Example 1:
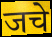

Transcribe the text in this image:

जचे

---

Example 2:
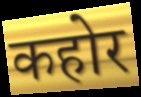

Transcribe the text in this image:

कहोर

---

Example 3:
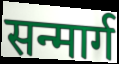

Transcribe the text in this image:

सन्मार्ग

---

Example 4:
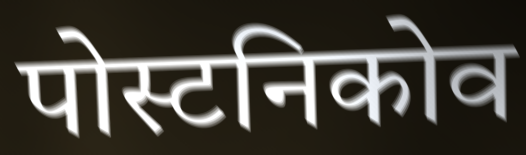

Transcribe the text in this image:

पोस्टनिकोव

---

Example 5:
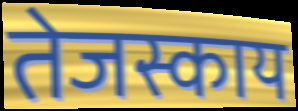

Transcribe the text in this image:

तेजस्काय